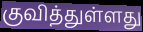
குவித்துள்ளது